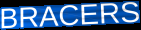
BRACERS